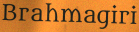
Brahmagiri